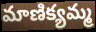
మాణిక్యమ్మ